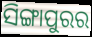
ସିଙ୍ଗାପୁରର